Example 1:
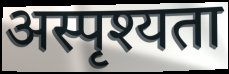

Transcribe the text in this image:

अस्पृश्यता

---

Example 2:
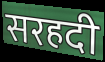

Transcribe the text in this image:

सरहदी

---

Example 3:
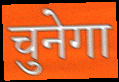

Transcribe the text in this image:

चुनेगा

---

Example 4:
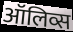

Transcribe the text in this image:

ऑलिव्स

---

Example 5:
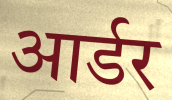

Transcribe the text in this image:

आर्डर